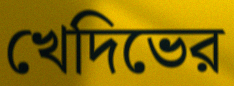
খেদিভের